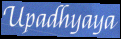
Upadhyaya